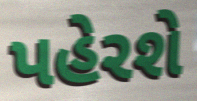
પહેરશે